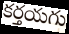
కర్తయగు